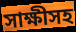
সাক্ষীসহ